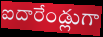
ఐదారేండ్లుగా